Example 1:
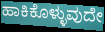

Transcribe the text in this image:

ಹಾಕಿಕೊಳ್ಳುವುದೇ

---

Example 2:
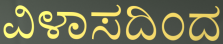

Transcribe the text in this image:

ವಿಳಾಸದಿಂದ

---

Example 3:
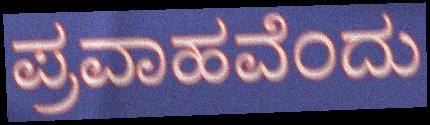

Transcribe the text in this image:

ಪ್ರವಾಹವೆಂದು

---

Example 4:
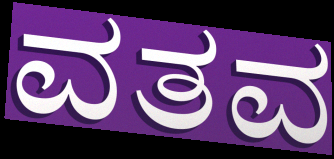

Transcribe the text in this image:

ವತವ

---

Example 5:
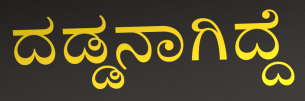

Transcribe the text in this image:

ದಡ್ಡನಾಗಿದ್ದೆ